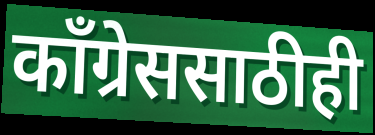
काँग्रेससाठीही